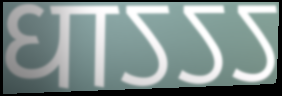
धाऽऽऽ